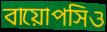
বায়োপসিও